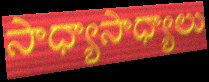
సాధ్యాసాధ్యాలు